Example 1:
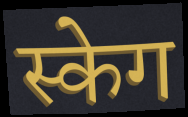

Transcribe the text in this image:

स्केग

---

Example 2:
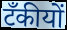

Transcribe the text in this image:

टँकीयों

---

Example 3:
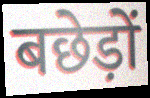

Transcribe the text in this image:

बछेड़ों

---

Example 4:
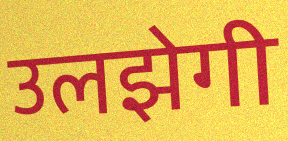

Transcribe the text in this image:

उलझेगी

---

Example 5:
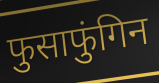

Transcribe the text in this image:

फुसाफुंगिन